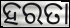
ହରତା